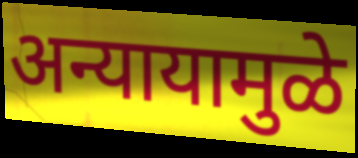
अन्यायामुळे